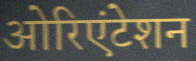
ओरिएंटेशन